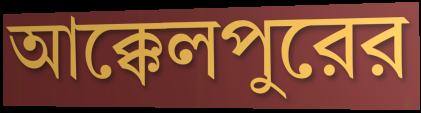
আক্কেলপুরের